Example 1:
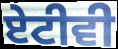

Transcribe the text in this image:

ਏਟੀਵੀ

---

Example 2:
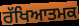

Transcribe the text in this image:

ਰੱਖਿਆਤਮਕ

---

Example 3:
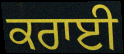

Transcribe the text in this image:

ਕਰਾਈ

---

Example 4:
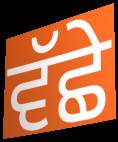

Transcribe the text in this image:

ਵੱਛੇ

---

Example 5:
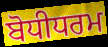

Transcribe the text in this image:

ਬੋਧੀਧਰਮ